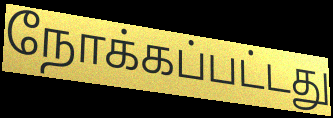
நோக்கப்பட்டது